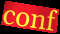
conf